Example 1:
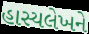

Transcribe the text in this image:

હાસ્યલેખને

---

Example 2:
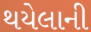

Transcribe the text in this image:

થયેલાની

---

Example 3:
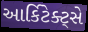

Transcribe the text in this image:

આર્કિટેક્ટ્સે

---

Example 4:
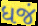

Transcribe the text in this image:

ધજં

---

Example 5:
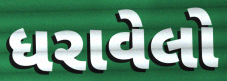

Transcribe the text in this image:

ધરાવેલો